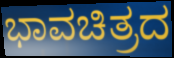
ಭಾವಚಿತ್ರದ